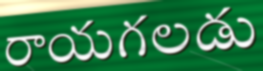
రాయగలడు